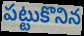
పట్టుకొనిన